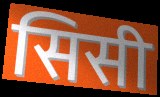
सिसी